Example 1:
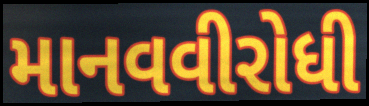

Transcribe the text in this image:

માનવવીરોધી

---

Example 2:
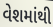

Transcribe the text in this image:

વેશમાંથી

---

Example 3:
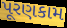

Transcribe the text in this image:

પૂરણકામ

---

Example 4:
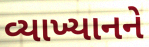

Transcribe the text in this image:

વ્યાખ્યાનને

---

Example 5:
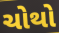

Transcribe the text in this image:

ચોથો